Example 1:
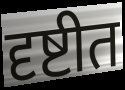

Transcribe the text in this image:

दृष्टीत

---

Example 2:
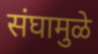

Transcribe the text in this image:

संघामुळे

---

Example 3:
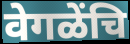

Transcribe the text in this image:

वेगळेंचि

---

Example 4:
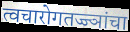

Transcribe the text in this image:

त्वचारोगतज्ज्ञांचा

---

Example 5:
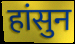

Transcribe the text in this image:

हांसुन